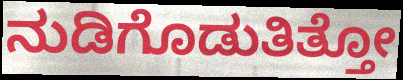
ನುಡಿಗೊಡುತಿತ್ತೋ